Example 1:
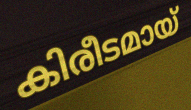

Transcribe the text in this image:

കിരീടമായ്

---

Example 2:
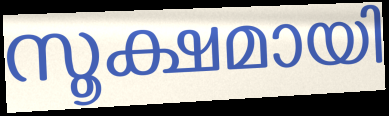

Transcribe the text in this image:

സൂക്ഷമായി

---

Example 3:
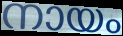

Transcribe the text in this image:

നായം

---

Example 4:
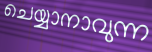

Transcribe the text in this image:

ചെയ്യാനാവുന്ന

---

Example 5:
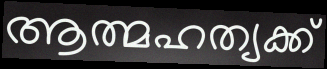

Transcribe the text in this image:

ആത്മഹത്യക്ക്